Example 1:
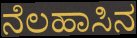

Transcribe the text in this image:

ನೆಲಹಾಸಿನ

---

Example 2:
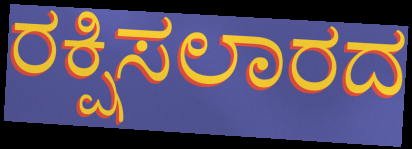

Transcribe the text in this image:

ರಕ್ಷಿಸಲಾರದ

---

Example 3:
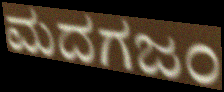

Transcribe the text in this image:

ಮದಗಜಂ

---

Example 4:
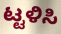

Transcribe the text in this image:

ಟ್ಟಳಿಸಿ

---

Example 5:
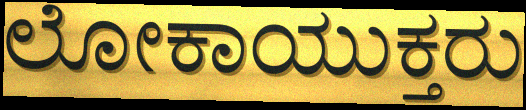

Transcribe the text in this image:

ಲೋಕಾಯುಕ್ತರು